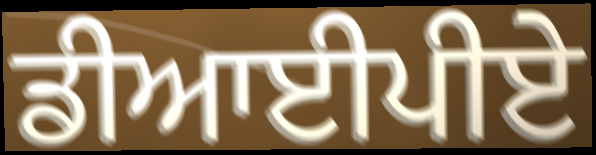
ਡੀਆਈਪੀਏ